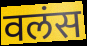
वलंस